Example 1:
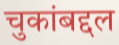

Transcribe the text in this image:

चुकांबद्दल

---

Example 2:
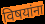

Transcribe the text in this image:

विषयांना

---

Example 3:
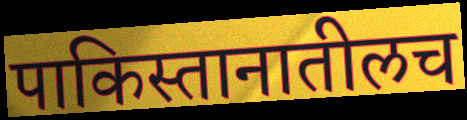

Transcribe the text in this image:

पाकिस्तानातीलच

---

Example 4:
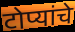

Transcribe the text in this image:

टोप्यांचे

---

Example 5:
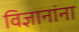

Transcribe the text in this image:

विज्ञानांना